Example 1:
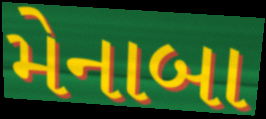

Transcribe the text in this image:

મેનાબા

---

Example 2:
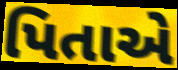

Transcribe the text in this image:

પિતાએ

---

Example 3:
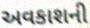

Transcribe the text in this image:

અવકાશની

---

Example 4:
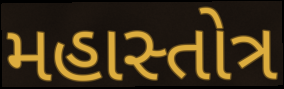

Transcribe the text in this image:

મહાસ્તોત્ર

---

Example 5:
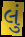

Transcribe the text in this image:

લું